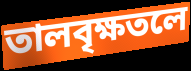
তালবৃক্ষতলে